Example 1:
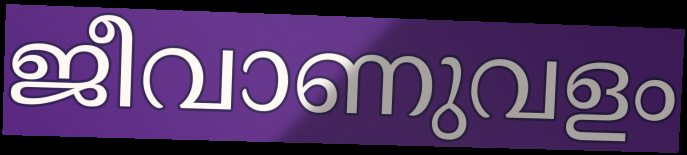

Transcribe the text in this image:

ജീവാണുവളം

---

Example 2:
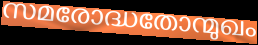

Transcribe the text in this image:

സമരോദ്ധതോന്മുഖം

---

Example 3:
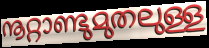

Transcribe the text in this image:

നൂറ്റാണ്ടുമുതലുള്ള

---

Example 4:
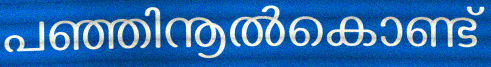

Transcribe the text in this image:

പഞ്ഞിനൂൽകൊണ്ട്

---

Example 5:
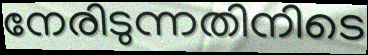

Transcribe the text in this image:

നേരിടുന്നതിനിടെ